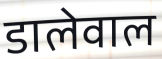
डालेवाल